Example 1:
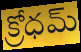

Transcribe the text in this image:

క్రోధమ్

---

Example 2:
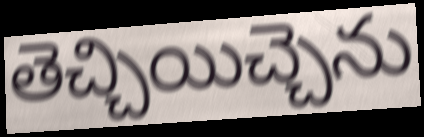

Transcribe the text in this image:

తెచ్చియిచ్చెను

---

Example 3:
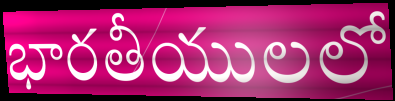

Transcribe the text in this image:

భారతీయులలో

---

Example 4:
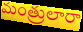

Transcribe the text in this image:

మంత్రులారా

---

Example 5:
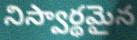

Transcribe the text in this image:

నిస్వార్థమైన